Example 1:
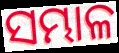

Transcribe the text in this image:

ସମ୍ଭାଳ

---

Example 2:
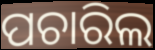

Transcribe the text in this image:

ପଚାରିଲ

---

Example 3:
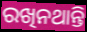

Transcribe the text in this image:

ରଖିନଥାନ୍ତି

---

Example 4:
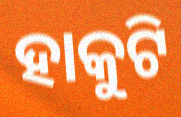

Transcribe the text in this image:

ହାକୁଟି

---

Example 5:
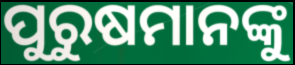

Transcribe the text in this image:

ପୁରୁଷମାନଙ୍କୁ